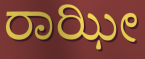
ರಾಝೀ